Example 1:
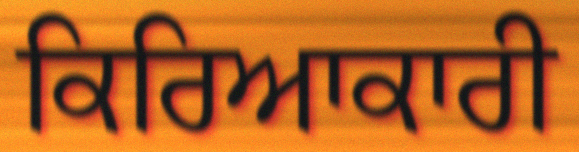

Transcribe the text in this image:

ਕਿਰਿਆਕਾਰੀ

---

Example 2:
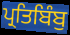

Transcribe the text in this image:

ਪ੍ਰਤਿਬਿੰਬੁ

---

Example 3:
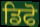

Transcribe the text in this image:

ਡਿਫੋ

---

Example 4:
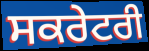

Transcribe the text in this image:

ਸਕਰੇਟਰੀ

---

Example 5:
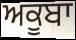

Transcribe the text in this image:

ਅਕੂਬਾ